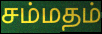
சம்மதம்